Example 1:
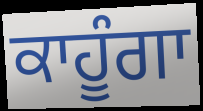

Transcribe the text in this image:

ਕਾਹੂੰਗਾ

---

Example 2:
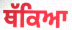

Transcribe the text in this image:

ਥੱਕਿਆ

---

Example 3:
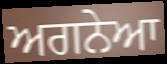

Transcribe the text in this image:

ਅਗਨੇਆ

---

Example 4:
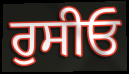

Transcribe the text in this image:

ਰੁਸੀਓ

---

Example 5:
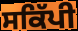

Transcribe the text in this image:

ਸਕਿੱਪੀ